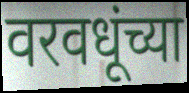
वरवधूंच्या